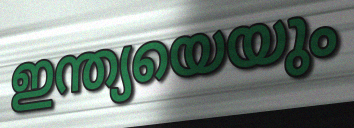
ഇന്ത്യയെയും